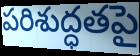
పరిశుద్ధతపై